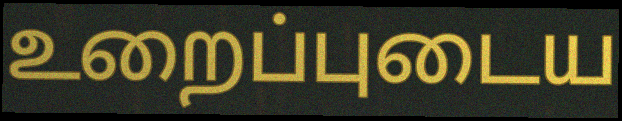
உறைப்புடைய